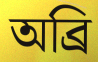
অব্ৰি